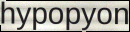
hypopyon